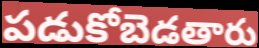
పడుకోబెడతారు